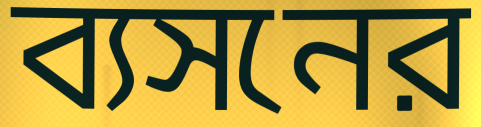
ব্যসনের